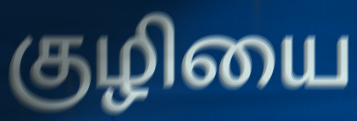
குழியை